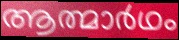
ആത്മാർഥം